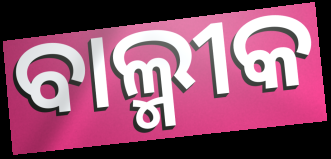
ବାଲ୍ମୀକ